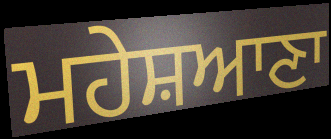
ਮਹੇਸ਼ਆਣਾ